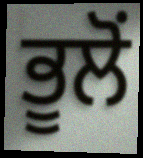
ਭੂਲੋਂ